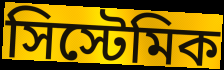
সিস্টেমিক